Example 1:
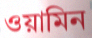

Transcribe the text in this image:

ওয়ামিন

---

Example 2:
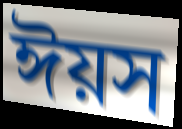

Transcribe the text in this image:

ঈয়স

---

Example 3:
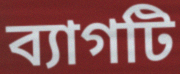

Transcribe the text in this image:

ব্যাগটি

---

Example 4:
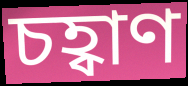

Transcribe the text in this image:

চহ্বাণ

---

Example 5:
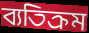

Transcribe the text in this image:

ব্যতিক্রম